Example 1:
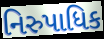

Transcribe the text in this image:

નિરુપાધિક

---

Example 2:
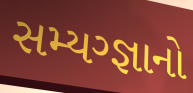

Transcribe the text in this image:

સમ્યગ્જ્ઞાનો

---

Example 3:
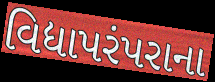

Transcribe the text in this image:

વિદ્યાપરંપરાના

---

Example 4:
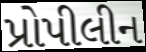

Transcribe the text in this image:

પ્રોપીલીન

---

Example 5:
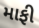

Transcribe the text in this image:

માફી